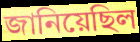
জানিয়েছিল